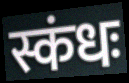
स्कंधः